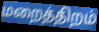
மறைத்திறம்